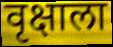
वृक्षाला